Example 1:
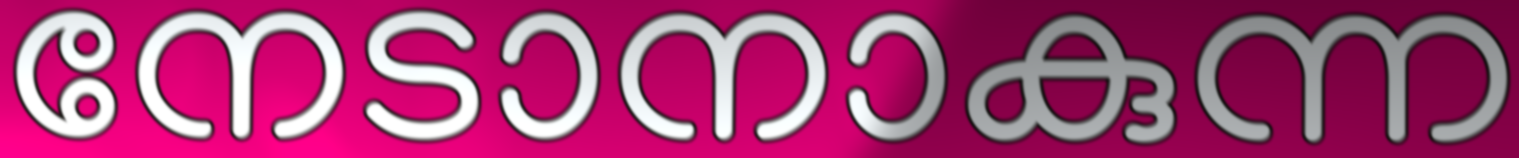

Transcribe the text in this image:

നേടാനാകുന്ന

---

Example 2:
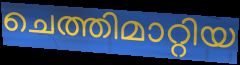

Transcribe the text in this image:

ചെത്തിമാറ്റിയ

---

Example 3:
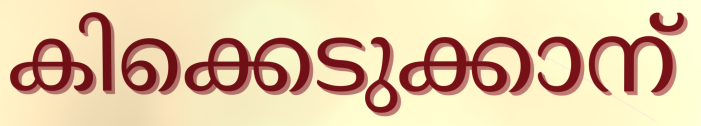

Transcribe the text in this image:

കിക്കെടുക്കാന്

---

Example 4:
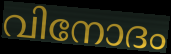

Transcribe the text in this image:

വിനോദം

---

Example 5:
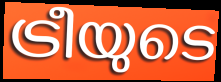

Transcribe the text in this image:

ട്രീയുടെ